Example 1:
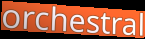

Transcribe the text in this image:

orchestral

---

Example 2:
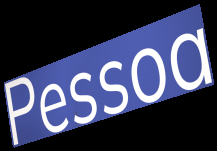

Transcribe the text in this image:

Pessoa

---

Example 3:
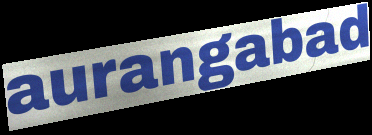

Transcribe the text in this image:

aurangabad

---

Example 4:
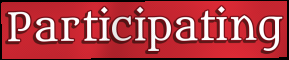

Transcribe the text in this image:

Participating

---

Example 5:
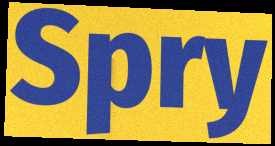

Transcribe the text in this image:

Spry